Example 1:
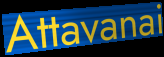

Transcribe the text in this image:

Attavanai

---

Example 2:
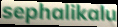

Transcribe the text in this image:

sephalikalu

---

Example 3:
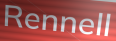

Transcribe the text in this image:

Rennell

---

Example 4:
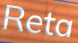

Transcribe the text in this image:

Reta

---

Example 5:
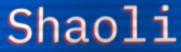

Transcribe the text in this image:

Shaoli